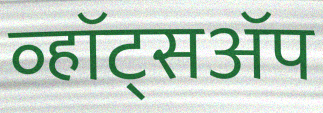
व्हॉट्सॲप